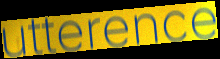
utterence